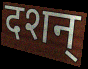
दशन्